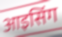
आइसिंग